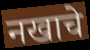
नखाचे